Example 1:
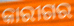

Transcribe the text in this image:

କାରୀଗର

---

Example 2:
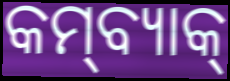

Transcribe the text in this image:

କମ୍‌ବ୍ୟାକ୍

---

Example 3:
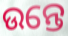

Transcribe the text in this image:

ଉନ୍ତେ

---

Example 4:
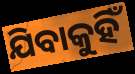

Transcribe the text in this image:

ଯିବାକୁହିଁ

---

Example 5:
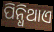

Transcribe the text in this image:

ପିନ୍ଧିଥାଏ